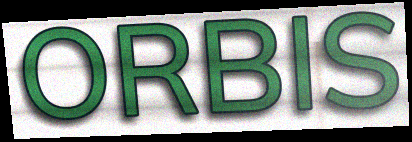
ORBIS